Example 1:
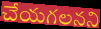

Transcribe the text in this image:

చేయగలనని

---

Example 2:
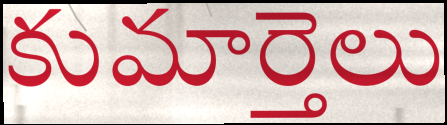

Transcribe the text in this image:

కుమార్తెలు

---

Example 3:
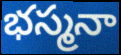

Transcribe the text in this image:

భస్మనా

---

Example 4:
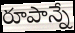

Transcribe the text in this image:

రూపాన్నే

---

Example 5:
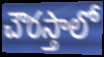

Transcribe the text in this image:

చౌరస్తాలో